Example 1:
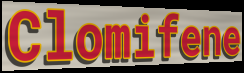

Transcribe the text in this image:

Clomifene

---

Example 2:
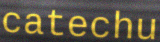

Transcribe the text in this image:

catechu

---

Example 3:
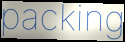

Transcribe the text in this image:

packing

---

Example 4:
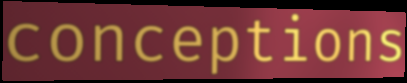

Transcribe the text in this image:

conceptions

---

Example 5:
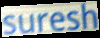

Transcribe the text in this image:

suresh